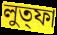
লুত্ফা